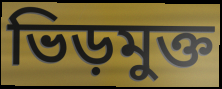
ভিড়মুক্ত